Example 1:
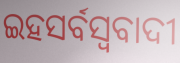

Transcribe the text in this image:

ଇହସର୍ବସ୍ୱବାଦୀ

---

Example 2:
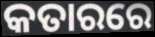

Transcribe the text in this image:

କତାରରେ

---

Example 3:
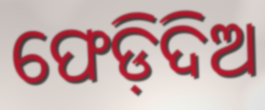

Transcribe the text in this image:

ଫେଡ଼ିଦିଅ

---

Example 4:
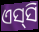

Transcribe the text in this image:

ଏସ୍‍ସି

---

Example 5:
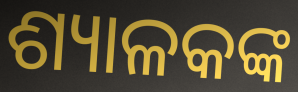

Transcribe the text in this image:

ଶ୍ୟାଳକଙ୍କ